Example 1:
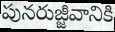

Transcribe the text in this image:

పునరుజ్జీవానికి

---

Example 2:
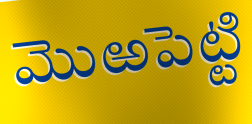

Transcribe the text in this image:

మొఱపెట్టి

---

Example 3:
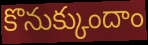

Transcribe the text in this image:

కొనుక్కుందాం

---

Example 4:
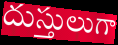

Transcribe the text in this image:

దుస్తులుగా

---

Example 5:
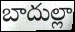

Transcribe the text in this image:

బాదుల్లా